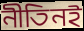
নীতিনই